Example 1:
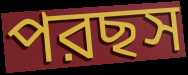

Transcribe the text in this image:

পরছস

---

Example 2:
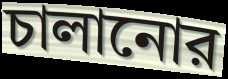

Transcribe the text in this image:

চালানোর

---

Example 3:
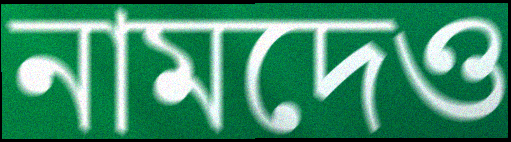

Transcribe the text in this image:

নামদেও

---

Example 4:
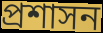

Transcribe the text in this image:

প্রশাসন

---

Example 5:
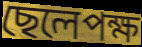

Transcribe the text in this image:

ছেলেপক্ষ